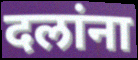
दलांना